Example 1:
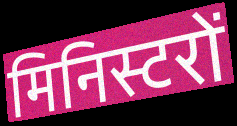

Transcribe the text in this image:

मिनिस्टरों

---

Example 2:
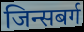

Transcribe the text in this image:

जिन्सबर्ग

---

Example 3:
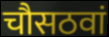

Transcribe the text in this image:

चौसठवां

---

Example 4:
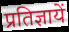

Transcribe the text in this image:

प्रतिज्ञायें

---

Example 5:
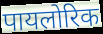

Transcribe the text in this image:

पायलोरिक